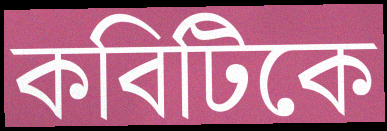
কবিটিকে